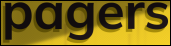
pagers